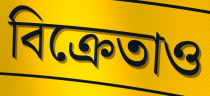
বিক্রেতাও